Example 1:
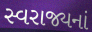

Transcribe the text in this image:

સ્વરાજ્યનાં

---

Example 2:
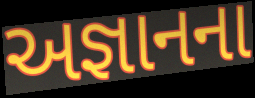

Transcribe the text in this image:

અજ્ઞાનના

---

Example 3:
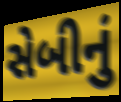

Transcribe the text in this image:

સેબીનું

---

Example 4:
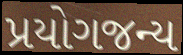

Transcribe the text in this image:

પ્રયોગજન્ય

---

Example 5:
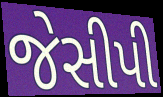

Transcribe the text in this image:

જેસીપી